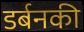
डर्बनकी